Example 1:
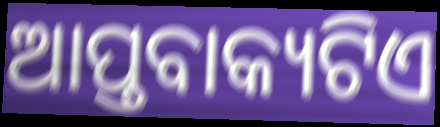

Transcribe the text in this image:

ଆପ୍ତବାକ୍ୟଟିଏ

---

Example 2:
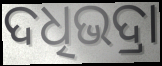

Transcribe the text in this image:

ଦଧିଭଦ୍ରା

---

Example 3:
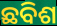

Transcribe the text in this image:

ଛବିଶ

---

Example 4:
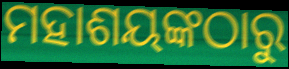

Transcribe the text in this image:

ମହାଶୟଙ୍କଠାରୁ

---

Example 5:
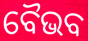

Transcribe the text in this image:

ବୈଭବ